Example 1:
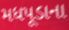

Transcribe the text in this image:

મધપૂડાના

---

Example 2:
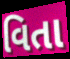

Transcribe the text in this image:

વિતા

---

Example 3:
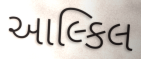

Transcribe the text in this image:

આલ્કિલ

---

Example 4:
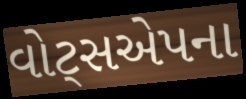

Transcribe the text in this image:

વોટ્સએપના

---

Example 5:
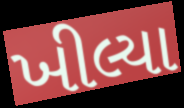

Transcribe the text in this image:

ખીલ્યા